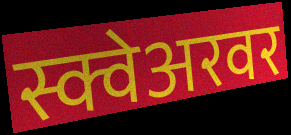
स्क्वेअरवर